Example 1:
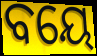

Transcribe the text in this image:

ବୟେ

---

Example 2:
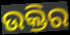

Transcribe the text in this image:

ଉକ୍ତିର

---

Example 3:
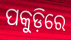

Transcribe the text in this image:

ପକୁଡ଼ିରେ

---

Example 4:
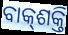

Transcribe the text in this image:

ବାକ୍‍ଶକ୍ତି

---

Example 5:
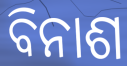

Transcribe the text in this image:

ବିନାଶ